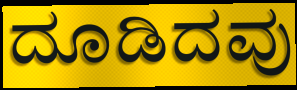
ದೂಡಿದವು